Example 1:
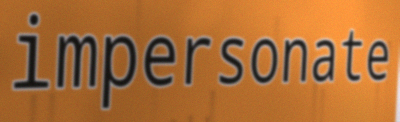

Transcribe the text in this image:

impersonate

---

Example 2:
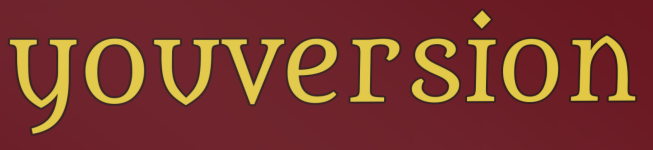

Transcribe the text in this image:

youversion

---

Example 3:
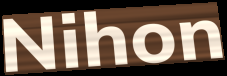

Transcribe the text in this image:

Nihon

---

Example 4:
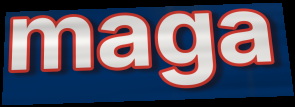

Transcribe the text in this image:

maga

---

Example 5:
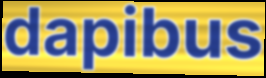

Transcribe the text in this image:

dapibus